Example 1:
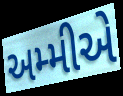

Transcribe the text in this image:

અમ્મીએ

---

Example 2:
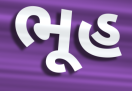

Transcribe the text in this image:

ભૂહ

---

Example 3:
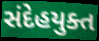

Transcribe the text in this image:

સંદેહયુક્ત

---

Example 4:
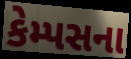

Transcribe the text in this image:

કેમ્પસના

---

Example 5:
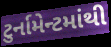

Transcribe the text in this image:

ટુર્નામેન્ટમાંથી